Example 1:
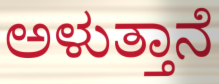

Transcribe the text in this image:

ಅಳುತ್ತಾನೆ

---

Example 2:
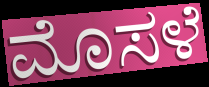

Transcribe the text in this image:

ಮೊಸಳೆ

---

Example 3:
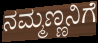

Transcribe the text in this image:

ನಮ್ಮಣ್ಣನಿಗೆ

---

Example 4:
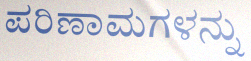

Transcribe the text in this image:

ಪರಿಣಾಮಗಳನ್ನು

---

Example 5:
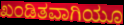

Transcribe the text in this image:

ಖಂಡಿತವಾಗಿಯೂ